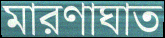
মারণাঘাত